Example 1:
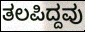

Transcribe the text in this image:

ತಲಪಿದ್ದವು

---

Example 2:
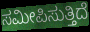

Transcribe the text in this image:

ಸಮೀಪಿಸುತ್ತಿದೆ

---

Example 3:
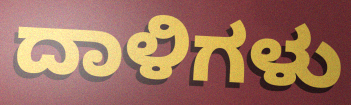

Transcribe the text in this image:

ದಾಳಿಗಳು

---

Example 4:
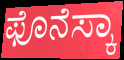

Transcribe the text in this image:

ಫೊನೆಸ್ಕಾ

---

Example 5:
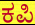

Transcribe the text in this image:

ಕಪಿ